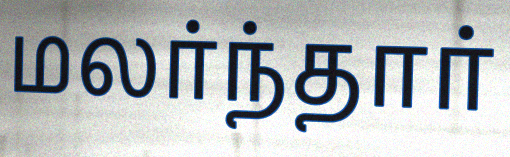
மலர்ந்தார்